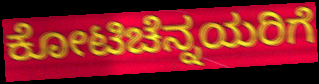
ಕೋಟಿಚೆನ್ನಯರಿಗೆ